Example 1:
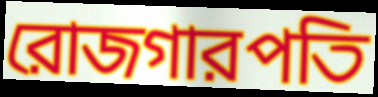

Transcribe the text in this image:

রোজগারপতি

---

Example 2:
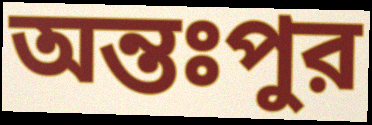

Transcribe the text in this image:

অন্তঃপুর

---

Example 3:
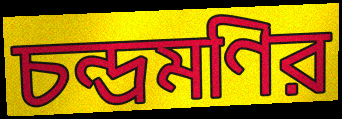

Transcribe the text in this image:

চন্দ্রমণির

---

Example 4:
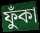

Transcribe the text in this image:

ফুঁকা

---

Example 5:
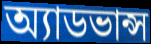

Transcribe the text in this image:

অ্যাডভান্স